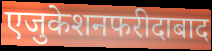
एजुकेशनफरीदाबाद